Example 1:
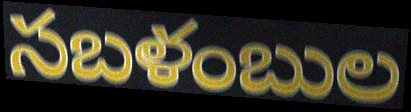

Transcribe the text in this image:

సబళంబుల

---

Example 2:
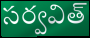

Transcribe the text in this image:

సర్వవిత్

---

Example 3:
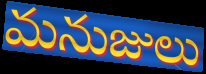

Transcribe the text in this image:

మనుజులు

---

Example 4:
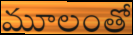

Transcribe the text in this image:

మూలంతో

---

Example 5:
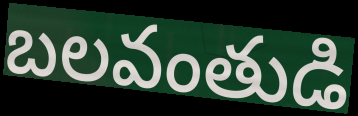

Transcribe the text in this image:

బలవంతుడి